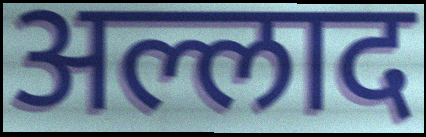
अल्लाद